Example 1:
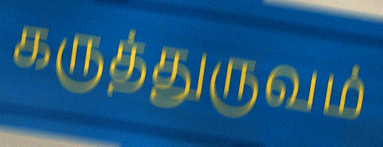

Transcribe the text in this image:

கருத்துருவம்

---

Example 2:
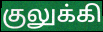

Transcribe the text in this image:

குலுக்கி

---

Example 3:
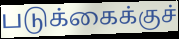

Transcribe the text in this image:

படுக்கைக்குச்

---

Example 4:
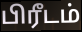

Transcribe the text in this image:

பிரீடம்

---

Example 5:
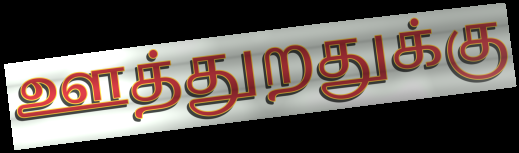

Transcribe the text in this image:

ஊத்துறதுக்கு